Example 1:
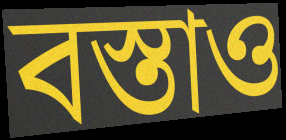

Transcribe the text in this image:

বস্তাও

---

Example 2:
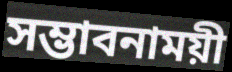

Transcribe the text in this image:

সম্ভাবনাময়ী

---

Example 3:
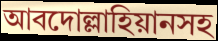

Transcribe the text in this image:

আবদোল্লাহিয়ানসহ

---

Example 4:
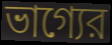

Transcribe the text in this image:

ভাগ্যের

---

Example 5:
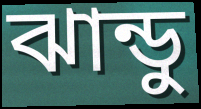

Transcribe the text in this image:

ঝান্ডু